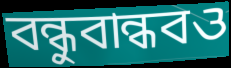
বন্ধুবান্ধবও